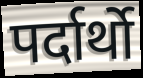
पर्दार्थो